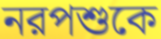
নরপশুকে